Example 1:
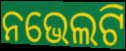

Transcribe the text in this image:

ନଭେଲଟି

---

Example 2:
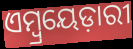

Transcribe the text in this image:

ଏମ୍ୱ୍ରୟେଡ଼ାରୀ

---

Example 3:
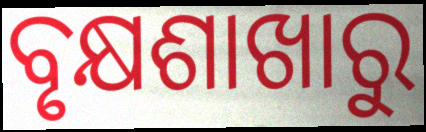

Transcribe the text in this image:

ବୃକ୍ଷଶାଖାରୁ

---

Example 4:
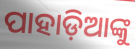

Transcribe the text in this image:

ପାହାଡ଼ିଆଙ୍କୁ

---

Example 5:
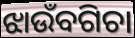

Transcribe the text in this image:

ଝାଉଁବଗିଚା